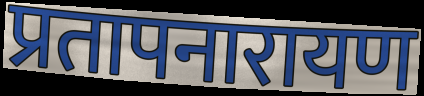
प्रतापनारायण